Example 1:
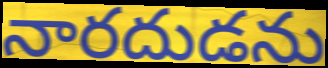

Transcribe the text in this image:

నారదుడను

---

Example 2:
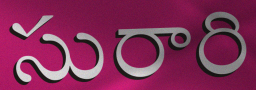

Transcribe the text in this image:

సురారి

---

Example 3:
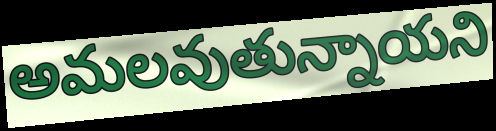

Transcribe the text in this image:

అమలవుతున్నాయని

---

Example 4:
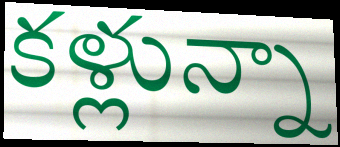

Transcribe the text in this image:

కళ్లున్నా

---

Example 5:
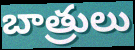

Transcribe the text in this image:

బాత్రులు